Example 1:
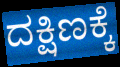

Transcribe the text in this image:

ದಕ್ಷಿಣಕ್ಕೆ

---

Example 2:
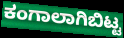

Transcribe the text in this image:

ಕಂಗಾಲಾಗಿಬಿಟ್ಟ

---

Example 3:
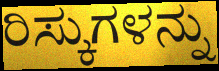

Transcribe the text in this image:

ರಿಸ್ಕುಗಳನ್ನು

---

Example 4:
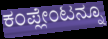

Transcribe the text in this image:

ಕಂಪ್ಲೇಂಟನ್ನೂ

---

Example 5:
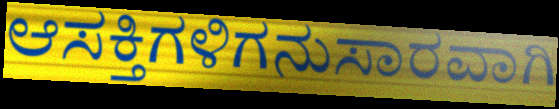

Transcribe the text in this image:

ಆಸಕ್ತಿಗಳಿಗನುಸಾರವಾಗಿ